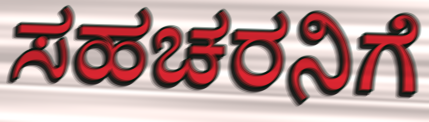
ಸಹಚರನಿಗೆ